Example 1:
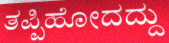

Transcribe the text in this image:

ತಪ್ಪಿಹೋದದ್ದು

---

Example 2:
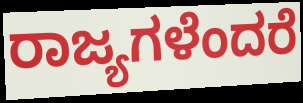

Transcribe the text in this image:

ರಾಜ್ಯಗಳೆಂದರೆ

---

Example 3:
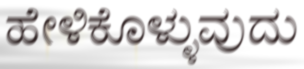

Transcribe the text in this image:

ಹೇಳಿಕೊಳ್ಳುವುದು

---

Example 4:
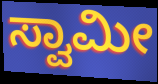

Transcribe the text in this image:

ಸ್ವಾಮೀ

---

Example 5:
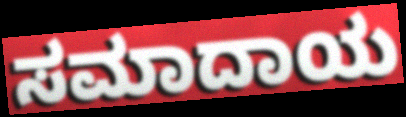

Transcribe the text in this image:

ಸಮಾದಾಯ